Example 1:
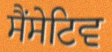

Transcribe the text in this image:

ਸੈਂਸੇਟਿਵ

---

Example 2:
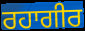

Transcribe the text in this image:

ਰਹਾਗੀਰ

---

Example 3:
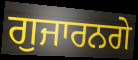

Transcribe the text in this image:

ਗੁਜਾਰਨਗੇ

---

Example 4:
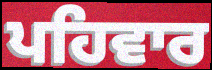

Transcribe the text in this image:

ਪਹਿਵਾਰ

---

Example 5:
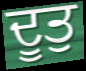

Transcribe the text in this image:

ਦੂਤੁ